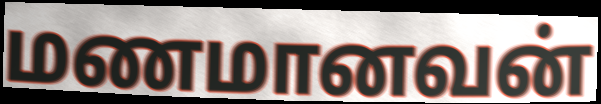
மணமானவன்